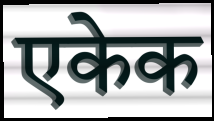
एकेक